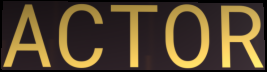
ACTOR